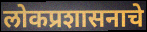
लोकप्रशासनाचे